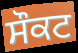
ਸੌਕਟ